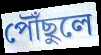
পৌঁছুলে